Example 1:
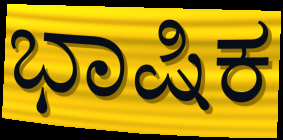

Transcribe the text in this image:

ಭಾಷಿಕ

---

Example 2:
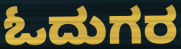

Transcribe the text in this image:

ಓದುಗರ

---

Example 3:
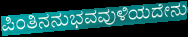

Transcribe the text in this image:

ಪಿಂತಿನನುಭವವುಳಿಯದೇನು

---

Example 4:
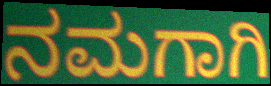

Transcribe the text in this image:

ನಮಗಾಗಿ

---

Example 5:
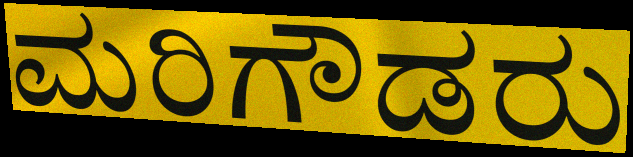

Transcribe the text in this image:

ಮರಿಗೌಡರು